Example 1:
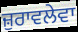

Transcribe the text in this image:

ਜ਼ੁਰਾਵਲੇਵਾ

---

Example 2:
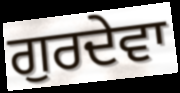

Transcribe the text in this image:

ਗੁਰਦੇਵਾ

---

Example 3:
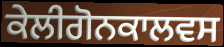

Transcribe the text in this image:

ਕੇਲੀਗੋਨਕਾਲਵਸ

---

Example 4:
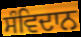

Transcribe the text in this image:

ਸੰਵਿਦਾਨ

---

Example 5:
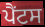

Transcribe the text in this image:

ਪੈਂਟਸ